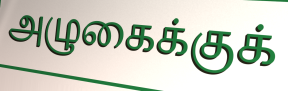
அழுகைக்குக்